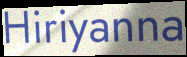
Hiriyanna